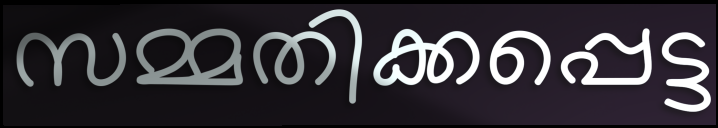
സമ്മതിക്കപ്പെട്ട